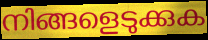
നിങ്ങളെടുക്കുക